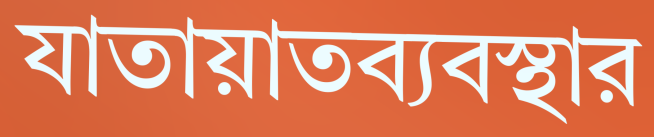
যাতায়াতব্যবস্থার